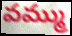
వమ్ము